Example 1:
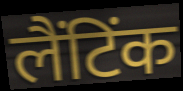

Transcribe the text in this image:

लैंटिंक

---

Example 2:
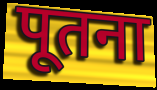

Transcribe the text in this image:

पूतना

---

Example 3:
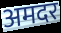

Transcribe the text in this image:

अमदर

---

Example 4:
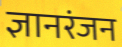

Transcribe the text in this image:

ज्ञानरंजन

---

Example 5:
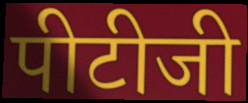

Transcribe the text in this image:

पीटीजी